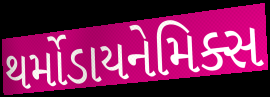
થર્મોડાયનેમિક્સ